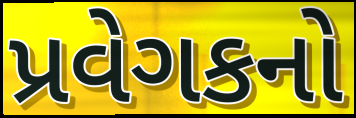
પ્રવેગકનો